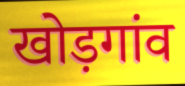
खोड़गांव